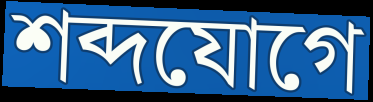
শব্দযোগে